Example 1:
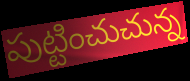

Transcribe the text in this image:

పుట్టించుచున్న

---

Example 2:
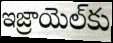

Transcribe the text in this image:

ఇజ్రాయెల్‌కు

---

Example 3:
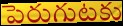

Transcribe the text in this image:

పెరుగుటకు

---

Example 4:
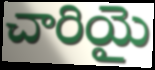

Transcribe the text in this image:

చారియై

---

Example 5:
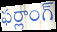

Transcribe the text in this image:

ఫర్లాంగ్